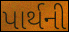
પાર્થની